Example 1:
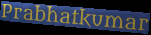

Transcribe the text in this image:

Prabhatkumar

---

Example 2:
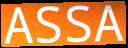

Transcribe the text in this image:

ASSA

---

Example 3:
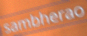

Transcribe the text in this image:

sambherao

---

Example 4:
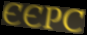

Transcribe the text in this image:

EEPC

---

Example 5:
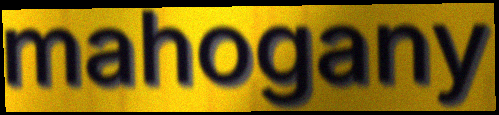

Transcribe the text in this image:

mahogany